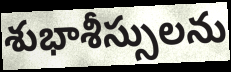
శుభాశీస్సులను